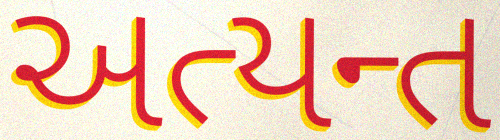
અત્યન્ત